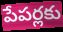
పేపర్లకు